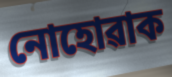
নোহোৱাক